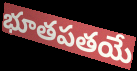
భూతపతయే